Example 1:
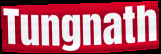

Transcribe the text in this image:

Tungnath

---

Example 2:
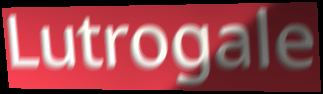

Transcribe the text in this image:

Lutrogale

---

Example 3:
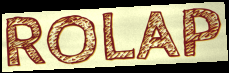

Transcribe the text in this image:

ROLAP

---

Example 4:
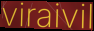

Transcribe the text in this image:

viraivil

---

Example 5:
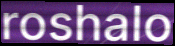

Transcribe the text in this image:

roshalo